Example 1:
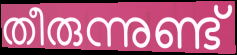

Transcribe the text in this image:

തീരുന്നുണ്ട്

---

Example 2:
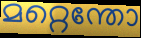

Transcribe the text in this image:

മറ്റെന്തോ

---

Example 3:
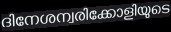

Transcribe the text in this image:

ദിനേശന്വരിക്കോളിയുടെ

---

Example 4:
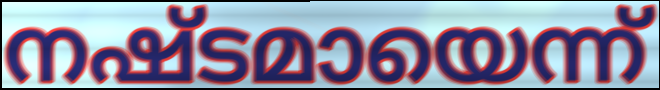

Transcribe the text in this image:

നഷ്ടമായെന്ന്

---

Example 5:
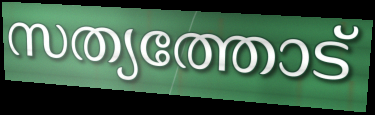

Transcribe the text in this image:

സത്യത്തോട്